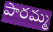
పారమ్మ